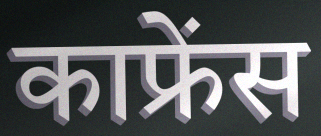
काफ्रेंस